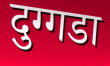
दुग्गडा